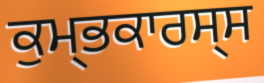
ਕੁਮ੍ਭਕਾਰਸ੍ਸ